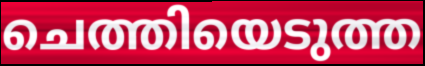
ചെത്തിയെടുത്ത